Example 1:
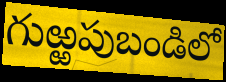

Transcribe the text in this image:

గుఱ్ఱపుబండిలో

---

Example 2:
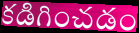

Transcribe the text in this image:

కడిగించడం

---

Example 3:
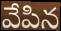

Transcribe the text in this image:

వేపిన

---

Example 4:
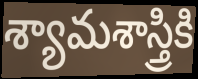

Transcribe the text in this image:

శ్యామశాస్త్రికి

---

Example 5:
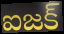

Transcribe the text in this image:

ఐజక్